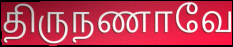
திருநணாவே